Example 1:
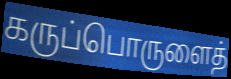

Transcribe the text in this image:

கருப்பொருளைத்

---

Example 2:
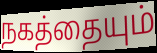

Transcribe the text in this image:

நகத்தையும்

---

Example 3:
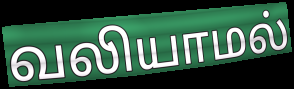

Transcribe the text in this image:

வலியாமல்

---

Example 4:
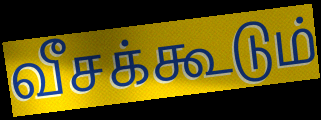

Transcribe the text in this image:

வீசக்கூடும்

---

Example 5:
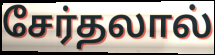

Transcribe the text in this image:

சேர்தலால்